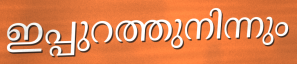
ഇപ്പുറത്തുനിന്നും